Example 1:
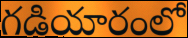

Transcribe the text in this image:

గడియారంలో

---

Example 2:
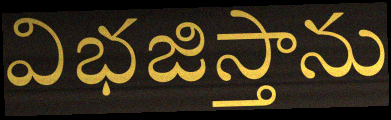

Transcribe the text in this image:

విభజిస్తాను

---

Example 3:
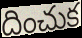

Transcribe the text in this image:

దించుక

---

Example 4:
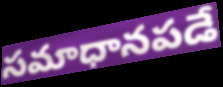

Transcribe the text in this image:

సమాధానపడే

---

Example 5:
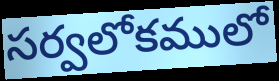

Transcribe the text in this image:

సర్వలోకములో